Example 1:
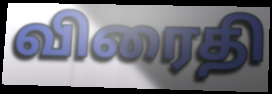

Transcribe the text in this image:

விரைதி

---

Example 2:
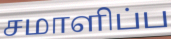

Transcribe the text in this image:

சமாளிப்ப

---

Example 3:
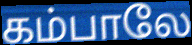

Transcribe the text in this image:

கம்பாலே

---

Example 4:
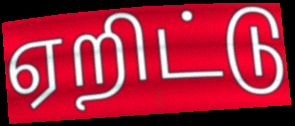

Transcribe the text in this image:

ஏறிட்டு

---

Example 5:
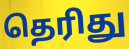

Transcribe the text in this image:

தெரிது